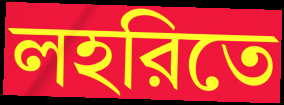
লহরিতে